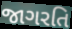
જાગરતિ